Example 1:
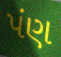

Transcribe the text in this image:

પંણ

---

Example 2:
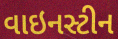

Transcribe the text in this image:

વાઇનસ્ટીન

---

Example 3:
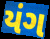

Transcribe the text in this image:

યંગ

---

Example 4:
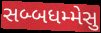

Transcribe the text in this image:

સબ્બધમ્મેસુ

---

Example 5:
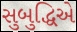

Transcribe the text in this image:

સુબુદ્ધિએ